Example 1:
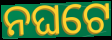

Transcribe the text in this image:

ନଘଟେ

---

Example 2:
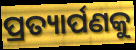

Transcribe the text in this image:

ପ୍ରତ୍ୟାର୍ପଣକୁ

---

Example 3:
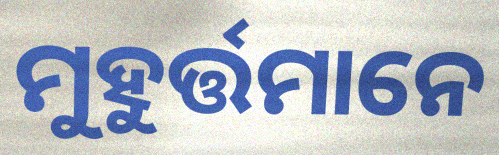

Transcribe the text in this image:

ମୁହୁର୍ତ୍ତମାନେ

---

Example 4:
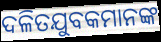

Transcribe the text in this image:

ଦଳିତଯୁବକମାନଙ୍କ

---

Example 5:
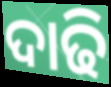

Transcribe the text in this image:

ଦାଢି